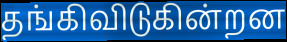
தங்கிவிடுகின்றன